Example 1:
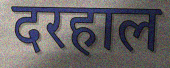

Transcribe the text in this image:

दरहाल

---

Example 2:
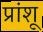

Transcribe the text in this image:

प्रांशू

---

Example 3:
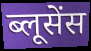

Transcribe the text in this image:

ब्लूसेंस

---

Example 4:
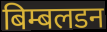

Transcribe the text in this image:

बिम्बलडन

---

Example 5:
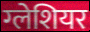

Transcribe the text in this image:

ग्‍लेशियर